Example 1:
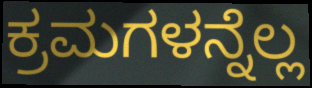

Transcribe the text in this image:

ಕ್ರಮಗಳನ್ನೆಲ್ಲ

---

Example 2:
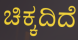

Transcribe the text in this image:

ಚಿಕ್ಕದಿದೆ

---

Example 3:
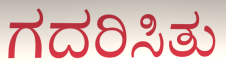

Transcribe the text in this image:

ಗದರಿಸಿತು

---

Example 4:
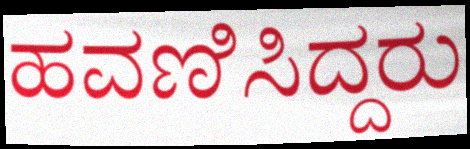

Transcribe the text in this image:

ಹವಣಿಸಿದ್ದರು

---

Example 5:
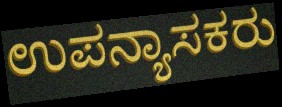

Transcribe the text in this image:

ಉಪನ್ಯಾಸಕರು